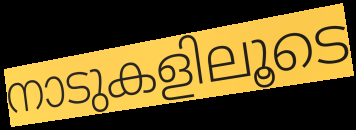
നാടുകളിലൂടെ